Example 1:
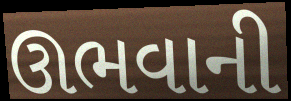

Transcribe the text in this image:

ઊભવાની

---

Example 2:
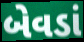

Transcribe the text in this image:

બેવડાં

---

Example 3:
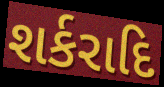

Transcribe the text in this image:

શર્કરાદિ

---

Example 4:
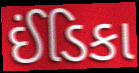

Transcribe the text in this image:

ઈંડિકા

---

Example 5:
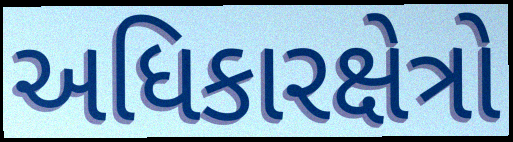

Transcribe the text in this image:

અધિકારક્ષેત્રો